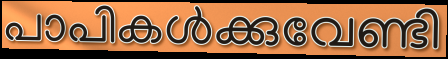
പാപികൾക്കുവേണ്ടി